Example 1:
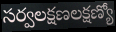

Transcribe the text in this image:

సర్వలక్షణలక్షణ్యో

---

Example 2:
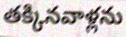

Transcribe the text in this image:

తక్కినవాళ్లను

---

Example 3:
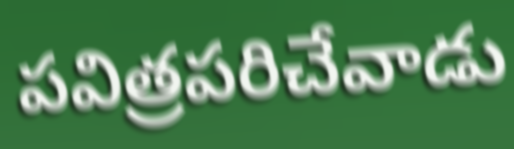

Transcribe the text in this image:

పవిత్రపరిచేవాడు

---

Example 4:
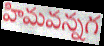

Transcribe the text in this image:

హిమవన్నగ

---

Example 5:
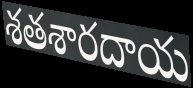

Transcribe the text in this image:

శతశారదాయ